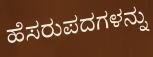
ಹೆಸರುಪದಗಳನ್ನು